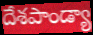
దేశపాండ్యా